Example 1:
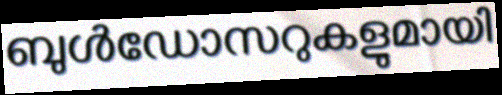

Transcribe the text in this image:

ബുൾഡോസറുകളുമായി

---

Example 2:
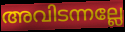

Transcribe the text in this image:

അവിടന്നല്ലേ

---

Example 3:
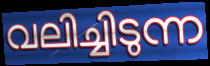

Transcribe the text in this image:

വലിച്ചിടുന്ന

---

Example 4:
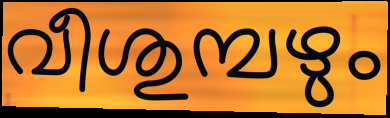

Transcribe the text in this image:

വീശുമ്പഴും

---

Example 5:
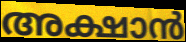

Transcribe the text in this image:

അക്ഷാൻ